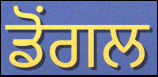
ਡੋਂਗਲ